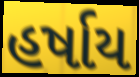
હર્ષાય